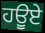
ਹਊਏ